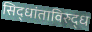
सिद्धांताविरुद्ध